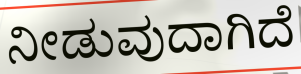
ನೀಡುವುದಾಗಿದೆ